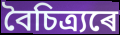
বৈচিত্ৰ্যৰে